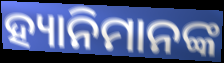
ହ୍ୟାନିମାନଙ୍କ